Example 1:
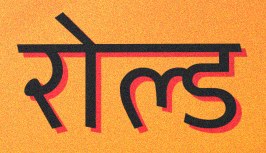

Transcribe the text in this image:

रोल्ड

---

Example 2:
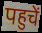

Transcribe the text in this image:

पहुचें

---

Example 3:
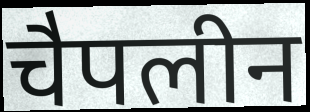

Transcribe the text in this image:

चैपलीन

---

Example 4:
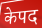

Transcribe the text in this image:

केपद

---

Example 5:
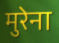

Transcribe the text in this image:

मुरेना